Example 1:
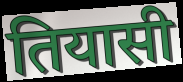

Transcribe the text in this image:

तियासी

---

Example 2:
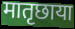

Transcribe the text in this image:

मातृछाया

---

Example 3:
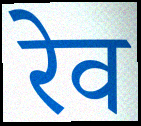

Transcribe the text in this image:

रेव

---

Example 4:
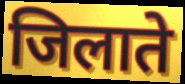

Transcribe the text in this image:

जिलाते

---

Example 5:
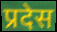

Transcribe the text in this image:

प्रदेस